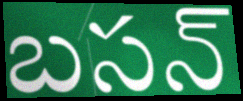
బసన్